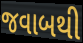
જવાબથી